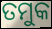
ତମୁକ